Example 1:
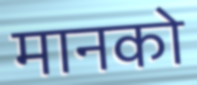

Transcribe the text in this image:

मानको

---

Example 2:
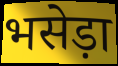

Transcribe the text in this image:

भसेड़ा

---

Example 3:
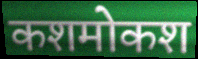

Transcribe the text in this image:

कशमोकश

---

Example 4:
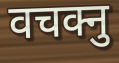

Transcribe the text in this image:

वचक्नु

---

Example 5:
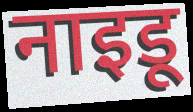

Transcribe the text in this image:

नाइडू